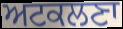
ਅਟਕਲਣਾ